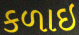
કળાઇ